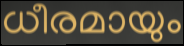
ധീരമായും